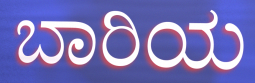
ಬಾರಿಯ